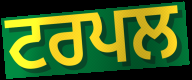
ਟਰਪਲ